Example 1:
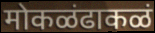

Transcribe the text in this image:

मोकळंढाकळं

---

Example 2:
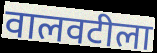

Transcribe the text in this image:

वालवटीला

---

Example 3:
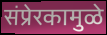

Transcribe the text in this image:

संप्रेरकामुळे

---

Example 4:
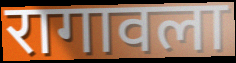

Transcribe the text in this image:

रागावला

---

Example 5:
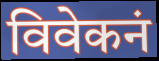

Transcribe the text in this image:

विवेकनं